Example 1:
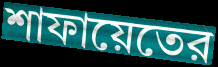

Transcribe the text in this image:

শাফায়েতের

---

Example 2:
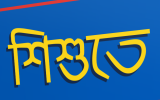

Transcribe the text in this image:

শিশুতে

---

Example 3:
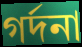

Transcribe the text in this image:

গর্দনা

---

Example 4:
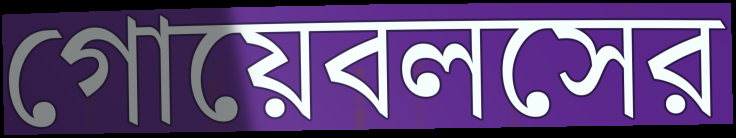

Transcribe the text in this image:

গোয়েবলসের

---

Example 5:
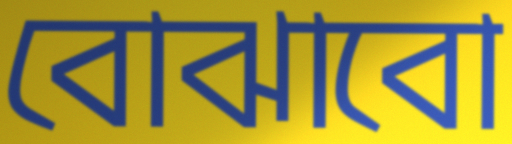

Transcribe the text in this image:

বোঝাবো